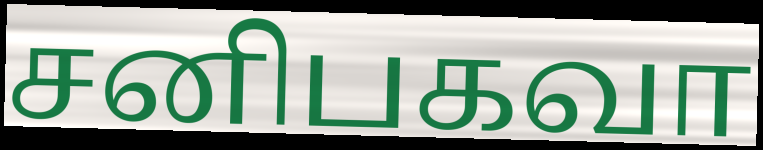
சனிபகவா